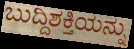
ಬುದ್ದಿಶಕ್ತಿಯನ್ನು